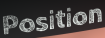
Position